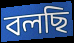
বলছি